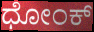
ಧೋಂಕ್